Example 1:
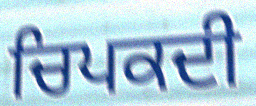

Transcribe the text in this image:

ਚਿਪਕਦੀ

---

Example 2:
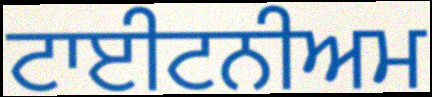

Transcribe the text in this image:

ਟਾਈਟਨੀਅਮ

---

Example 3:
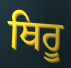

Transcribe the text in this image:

ਥਿਰੂ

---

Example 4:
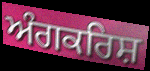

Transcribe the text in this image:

ਅੰਗਕਰਿਸ਼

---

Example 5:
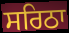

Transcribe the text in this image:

ਸਰਿਠਾ